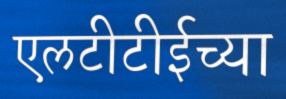
एलटीटीईच्या